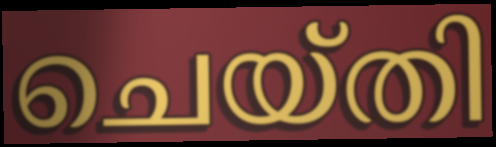
ചെയ്തി